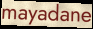
mayadane